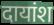
दायांश